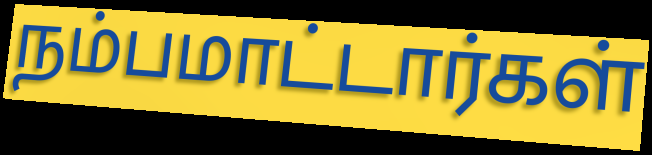
நம்பமாட்டார்கள்